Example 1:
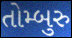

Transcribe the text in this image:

તોમ્બુરુ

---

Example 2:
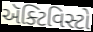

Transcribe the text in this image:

ઍક્ટિવિસ્ટો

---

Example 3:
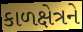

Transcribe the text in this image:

કાળક્ષેત્રને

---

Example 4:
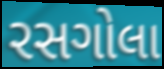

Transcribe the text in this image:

રસગોલા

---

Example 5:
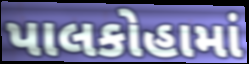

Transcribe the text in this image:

પાલકોહામાં